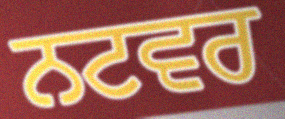
ਨਟਵਰ